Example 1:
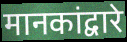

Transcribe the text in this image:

मानकांद्वारे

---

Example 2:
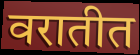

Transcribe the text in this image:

वरातीत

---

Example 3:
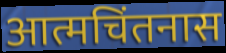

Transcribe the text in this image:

आत्मचिंतनास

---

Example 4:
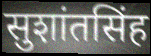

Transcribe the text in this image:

सुशांतसिंह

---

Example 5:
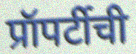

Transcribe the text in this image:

प्रॉपर्टीची